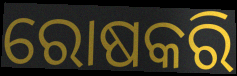
ରୋଷକରି